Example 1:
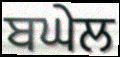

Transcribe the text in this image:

ਬਘੇਲ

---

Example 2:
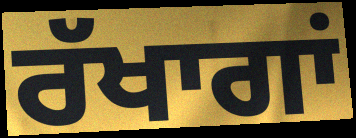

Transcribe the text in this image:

ਰੱਖਾਗਾਂ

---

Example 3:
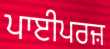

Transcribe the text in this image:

ਪਾਈਪਰਜ਼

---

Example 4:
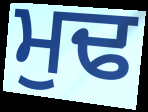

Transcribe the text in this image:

ਮੁਢ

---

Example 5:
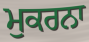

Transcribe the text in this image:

ਮੁਕਰਨਾ